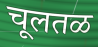
चूलतळ